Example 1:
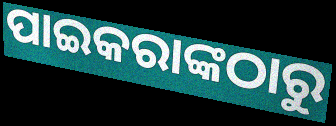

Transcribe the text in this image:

ପାଇକରାଙ୍କଠାରୁ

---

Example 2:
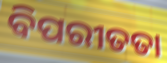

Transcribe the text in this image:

ବିପରୀତତା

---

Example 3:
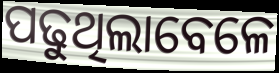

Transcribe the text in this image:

ପଢୁଥିଲାବେଳେ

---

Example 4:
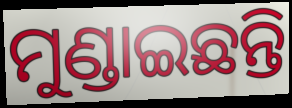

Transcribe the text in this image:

ମୁଣ୍ଡାଇଛନ୍ତି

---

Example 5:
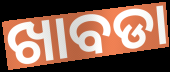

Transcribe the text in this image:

ଖାବଡା